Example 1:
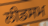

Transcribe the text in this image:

ਲੀਡਸਮ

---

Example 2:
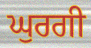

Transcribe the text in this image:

ਘੁਰਗੀ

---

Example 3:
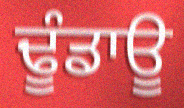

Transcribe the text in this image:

ਢੂੰਡਾਊ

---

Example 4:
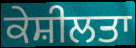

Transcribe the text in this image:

ਕੇਸ਼ੀਲਤਾ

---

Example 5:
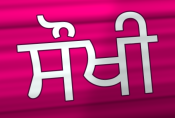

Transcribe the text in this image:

ਸੌਖੀ